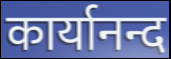
कार्यानन्द